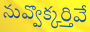
నువ్వొక్కర్తివే